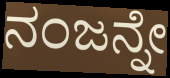
ನಂಜನ್ನೇ